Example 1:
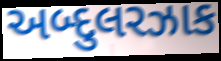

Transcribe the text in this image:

અબ્દુલરઝાક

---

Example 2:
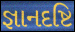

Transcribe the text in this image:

જ્ઞાનદષ્ટિ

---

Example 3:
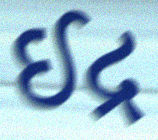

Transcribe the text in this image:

ઈદ્ર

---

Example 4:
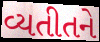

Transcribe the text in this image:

વ્યતીતને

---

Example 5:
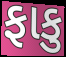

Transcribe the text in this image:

ફાકુ